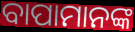
ବାପାମାନଙ୍କ